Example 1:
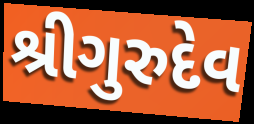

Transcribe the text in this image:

શ્રીગુરુદેવ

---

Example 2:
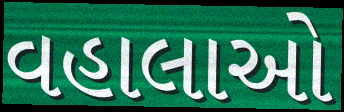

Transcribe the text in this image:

વહાલાઓ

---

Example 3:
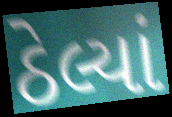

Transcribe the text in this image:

ઠેલ્યાં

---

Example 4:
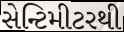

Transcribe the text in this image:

સેન્ટિમીટરથી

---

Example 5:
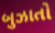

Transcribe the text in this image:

બુઝાતો